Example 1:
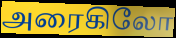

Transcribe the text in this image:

அரைகிலோ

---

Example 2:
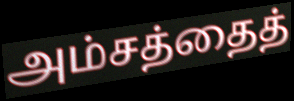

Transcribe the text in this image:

அம்சத்தைத்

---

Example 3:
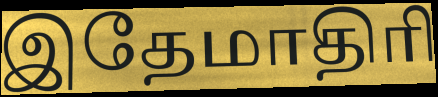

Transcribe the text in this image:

இதேமாதிரி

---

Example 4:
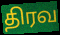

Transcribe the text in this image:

திரவ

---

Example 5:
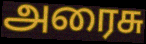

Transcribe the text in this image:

அரைசு